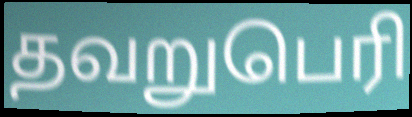
தவறுபெரி